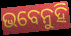
ଭବେନୁହି